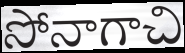
సోనాగాచి